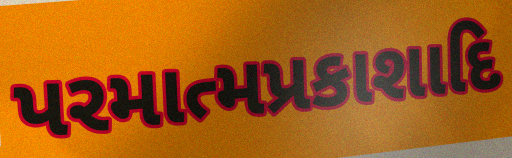
પરમાત્મપ્રકાશાદિ